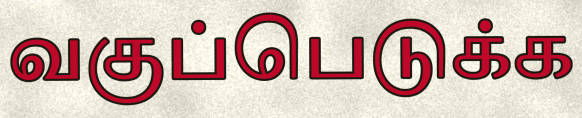
வகுப்பெடுக்க